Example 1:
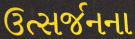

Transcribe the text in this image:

ઉત્સર્જનના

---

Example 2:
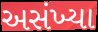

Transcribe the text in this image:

અસંખ્યા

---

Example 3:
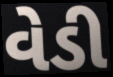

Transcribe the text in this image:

વેડી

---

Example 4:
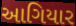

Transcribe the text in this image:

આગિયાર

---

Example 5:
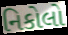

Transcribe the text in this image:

નિકોલો